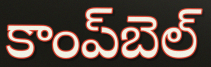
కాంప్‌బెల్